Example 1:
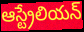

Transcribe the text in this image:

ఆస్ట్రేలియన్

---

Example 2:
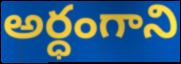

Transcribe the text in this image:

అర్ధంగాని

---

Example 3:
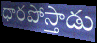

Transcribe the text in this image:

ధారపోస్తాడు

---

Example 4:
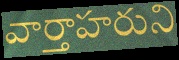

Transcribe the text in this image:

వార్తాహరుని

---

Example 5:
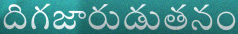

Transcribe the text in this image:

దిగజారుడుతనం